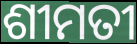
ଶୀମତୀ